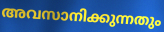
അവസാനിക്കുന്നതും